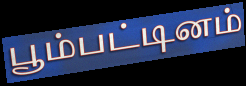
பூம்பட்டினம்